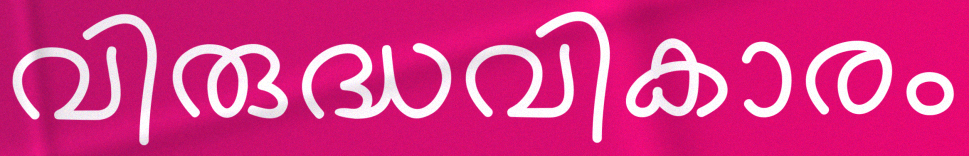
വിരുദ്ധവികാരം